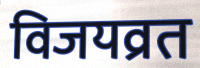
विजयव्रत